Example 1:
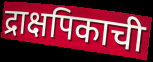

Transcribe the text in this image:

द्राक्षपिकाची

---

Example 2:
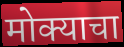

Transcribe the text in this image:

मोक्याचा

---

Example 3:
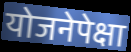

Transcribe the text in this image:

योजनेपेक्षा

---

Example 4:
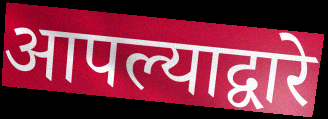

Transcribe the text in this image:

आपल्याद्वारे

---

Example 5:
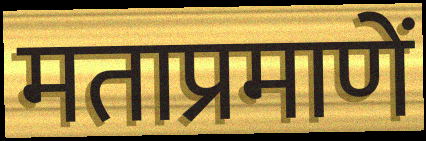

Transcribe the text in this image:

मताप्रमाणें